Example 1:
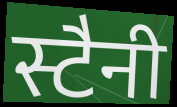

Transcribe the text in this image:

स्टैनी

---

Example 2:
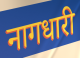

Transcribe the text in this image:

नागधारी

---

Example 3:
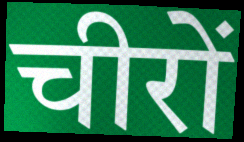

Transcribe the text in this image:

चीरों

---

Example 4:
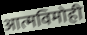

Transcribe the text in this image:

आत्मविमोही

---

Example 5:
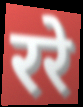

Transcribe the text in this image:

ररे